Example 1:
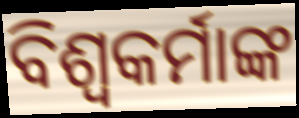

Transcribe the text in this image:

ବିଶ୍ୱକର୍ମାଙ୍କ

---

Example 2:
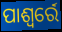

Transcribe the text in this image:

ପାଶ୍ୱର୍ରେ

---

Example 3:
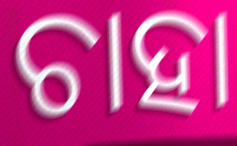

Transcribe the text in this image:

ଚାହା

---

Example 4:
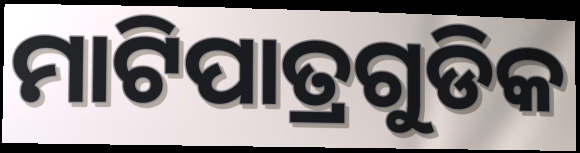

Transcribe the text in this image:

ମାଟିପାତ୍ରଗୁଡିକ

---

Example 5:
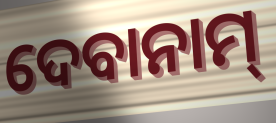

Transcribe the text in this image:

ଦେବାନାମ୍